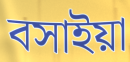
বসাইয়া